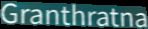
Granthratna